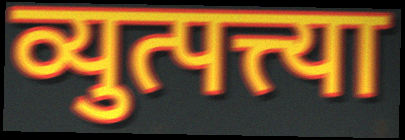
व्युत्पत्त्या